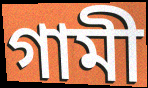
গামী